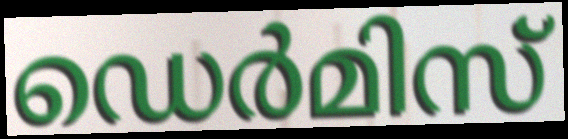
ഡെർമിസ്